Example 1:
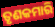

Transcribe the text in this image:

ତୃଣକମାରି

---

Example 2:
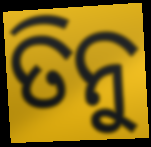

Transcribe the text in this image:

ତିନୁ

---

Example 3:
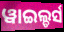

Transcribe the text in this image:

ୱାଇଲ୍ଡର୍ସ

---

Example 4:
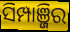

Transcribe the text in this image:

ସିମ୍ପାଞ୍ଜିର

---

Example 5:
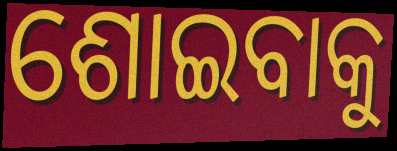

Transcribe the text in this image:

ଶୋଇବାକୁ